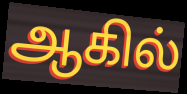
ஆகில்